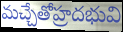
మచ్చేతోహ్రదభువి